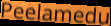
Peelamedu